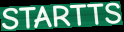
STARTTS